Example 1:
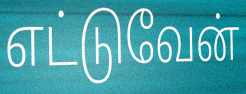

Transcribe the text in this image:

எட்டுவேன்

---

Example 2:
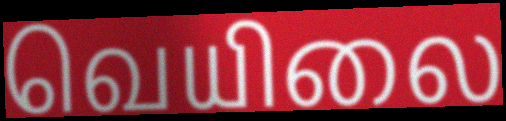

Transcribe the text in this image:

வெயிலை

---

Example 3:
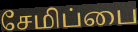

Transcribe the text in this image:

சேமிப்பை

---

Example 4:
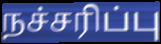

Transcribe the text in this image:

நச்சரிப்பு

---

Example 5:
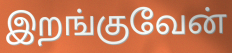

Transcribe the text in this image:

இறங்குவேன்